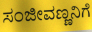
ಸಂಜೀವಣ್ಣನಿಗೆ